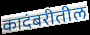
कादंबरीतील